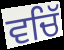
ਵਚਿੱ